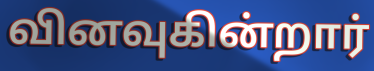
வினவுகின்றார்